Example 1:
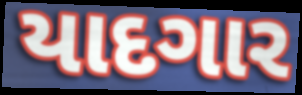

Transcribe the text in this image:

યાદગાર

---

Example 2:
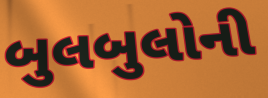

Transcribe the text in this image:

બુલબુલોની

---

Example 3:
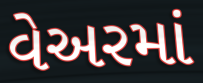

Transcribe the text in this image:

વેઅરમાં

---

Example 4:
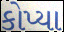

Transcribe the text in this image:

કોપ્યા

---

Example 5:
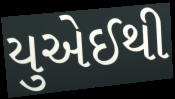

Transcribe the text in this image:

યુએઈથી